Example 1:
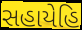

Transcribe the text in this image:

સહાયેહિ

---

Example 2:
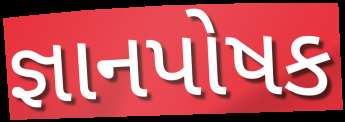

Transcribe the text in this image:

જ્ઞાનપોષક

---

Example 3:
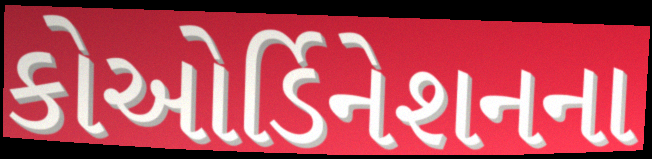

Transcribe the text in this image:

કોઓર્ડિનેશનના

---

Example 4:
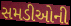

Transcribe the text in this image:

સમડીઓની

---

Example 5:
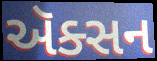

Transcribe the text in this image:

ઍક્સન